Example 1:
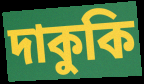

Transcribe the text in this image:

দাকুকি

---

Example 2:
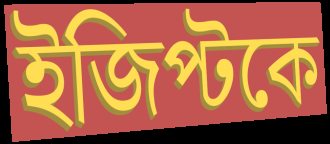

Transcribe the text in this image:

ইজিপ্টকে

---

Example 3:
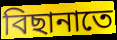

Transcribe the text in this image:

বিছানাতে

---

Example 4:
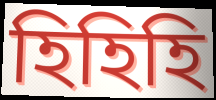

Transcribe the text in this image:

হিহিহি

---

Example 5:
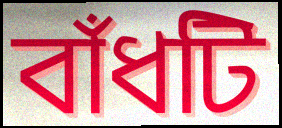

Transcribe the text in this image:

বাঁধটি